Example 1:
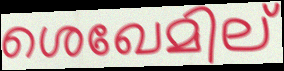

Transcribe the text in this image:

ശെഖേമില്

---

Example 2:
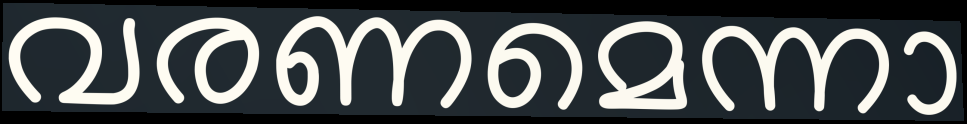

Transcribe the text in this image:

വരണമെന്നാ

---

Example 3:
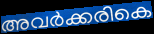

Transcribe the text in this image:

അവർക്കരികെ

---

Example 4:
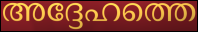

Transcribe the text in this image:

അദ്ദേഹത്തെ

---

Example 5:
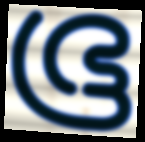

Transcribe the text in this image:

ഭൂ